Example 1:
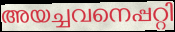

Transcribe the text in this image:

അയച്ചവനെപ്പറ്റി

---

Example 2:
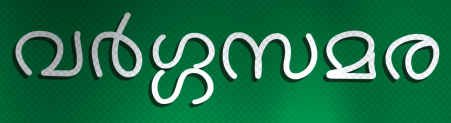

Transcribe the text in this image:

വർഗ്ഗസമര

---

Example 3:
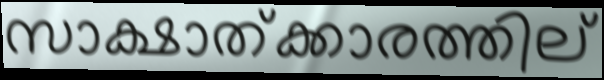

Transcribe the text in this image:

സാക്ഷാത്ക്കാരത്തില്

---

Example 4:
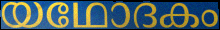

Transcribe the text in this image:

യഥോദകം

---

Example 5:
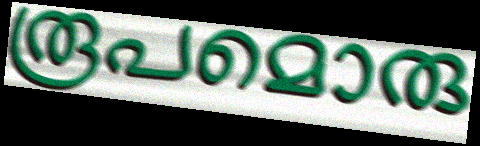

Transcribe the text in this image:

രൂപമൊരു